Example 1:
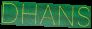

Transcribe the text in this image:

DHANS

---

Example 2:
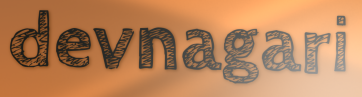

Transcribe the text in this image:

devnagari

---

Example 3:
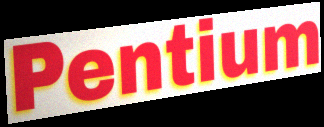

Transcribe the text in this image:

Pentium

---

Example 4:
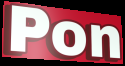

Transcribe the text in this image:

Pon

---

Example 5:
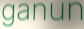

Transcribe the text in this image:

ganun